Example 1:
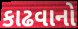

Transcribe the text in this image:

કાઢવાનો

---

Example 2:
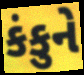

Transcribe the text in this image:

કંકુને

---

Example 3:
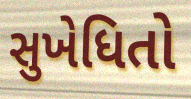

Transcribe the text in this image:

સુખેધિતો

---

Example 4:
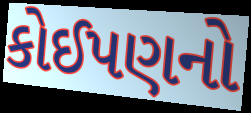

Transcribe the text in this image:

કોઈપણનો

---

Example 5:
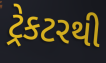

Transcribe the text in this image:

ટ્રેકટરથી